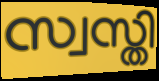
സ്വസ്തി